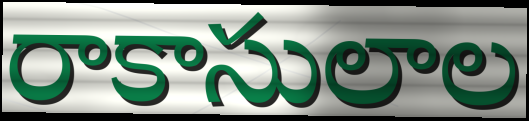
రాకాసులాల